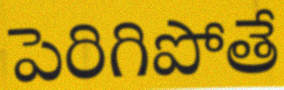
పెరిగిపోతే